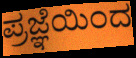
ಪ್ರಜ್ಞೆಯಿಂದ